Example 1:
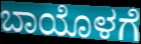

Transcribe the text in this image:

ಬಾಯೊಳಗೆ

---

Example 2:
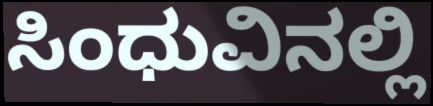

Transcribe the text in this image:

ಸಿಂಧುವಿನಲ್ಲಿ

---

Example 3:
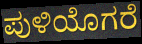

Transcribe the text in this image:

ಪುಳಿಯೊಗರೆ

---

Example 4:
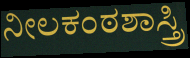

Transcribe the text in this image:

ನೀಲಕಂಠಶಾಸ್ತ್ರಿ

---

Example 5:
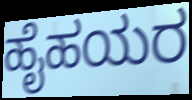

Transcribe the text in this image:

ಹೈಹಯರ